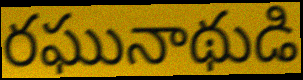
రఘునాథుడి